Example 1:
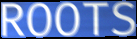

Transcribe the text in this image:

ROOTS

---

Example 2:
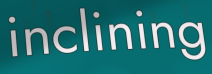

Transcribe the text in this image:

inclining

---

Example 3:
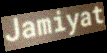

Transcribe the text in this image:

Jamiyat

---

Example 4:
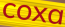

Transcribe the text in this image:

coxa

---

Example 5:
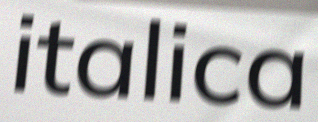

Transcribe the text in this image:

italica